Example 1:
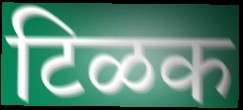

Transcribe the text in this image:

टिळक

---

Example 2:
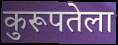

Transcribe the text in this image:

कुरूपतेला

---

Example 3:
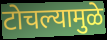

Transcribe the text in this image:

टोचल्यामुळे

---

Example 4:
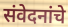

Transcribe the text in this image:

संवेदनांचे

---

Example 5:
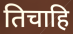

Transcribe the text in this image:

तिचाहि